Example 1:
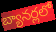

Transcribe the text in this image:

బ్యానర్లలో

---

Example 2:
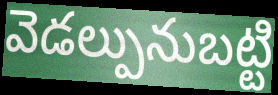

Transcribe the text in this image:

వెడల్పునుబట్టి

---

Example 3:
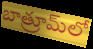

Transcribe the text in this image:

బాత్రూమ్‌లో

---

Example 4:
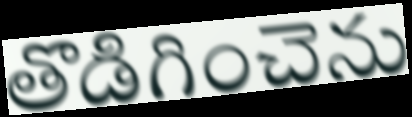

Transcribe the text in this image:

తొడిగించెను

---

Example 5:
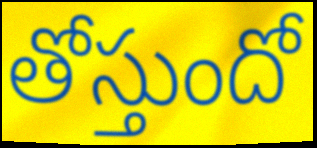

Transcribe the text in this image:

తోస్తుందో